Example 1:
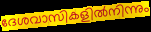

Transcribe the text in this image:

ദേശവാസികളിൽനിന്നും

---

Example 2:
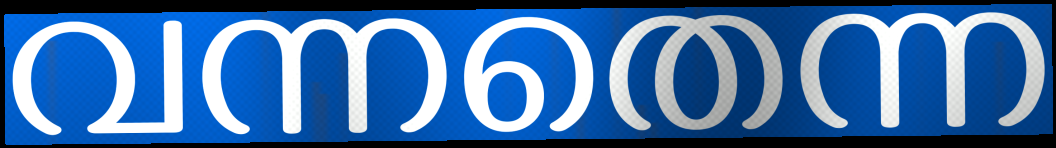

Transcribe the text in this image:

വന്നതെന്ന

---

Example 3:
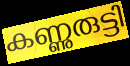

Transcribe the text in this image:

കണ്ണുരുട്ടി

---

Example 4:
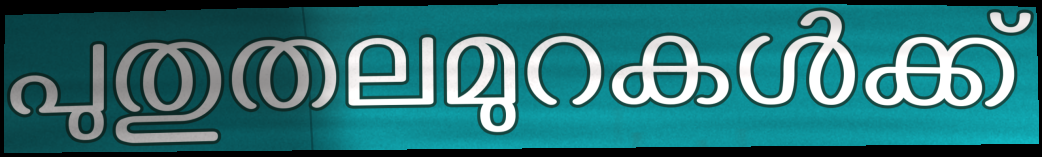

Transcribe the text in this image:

പുതുതലമുറകൾക്ക്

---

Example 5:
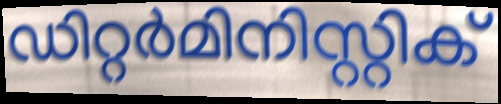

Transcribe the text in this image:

ഡിറ്റർമിനിസ്റ്റിക്